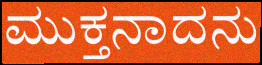
ಮುಕ್ತನಾದನು